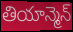
తియాన్మెన్